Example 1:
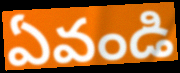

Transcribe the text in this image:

ఏవండి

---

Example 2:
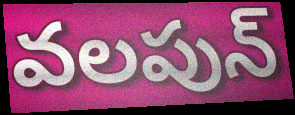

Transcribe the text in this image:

వలపున్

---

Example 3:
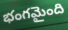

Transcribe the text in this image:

భంగమైంది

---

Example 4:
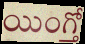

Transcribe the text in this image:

యింగ్తో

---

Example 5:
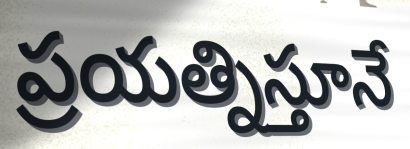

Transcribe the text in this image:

ప్రయత్నిస్తూనే